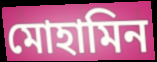
মোহামিন